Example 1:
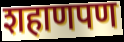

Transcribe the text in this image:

शहाणपण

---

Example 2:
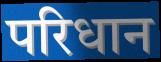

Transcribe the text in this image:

परिधान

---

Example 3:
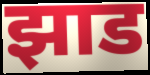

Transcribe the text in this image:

झाड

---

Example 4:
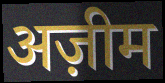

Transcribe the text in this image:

अज़ीम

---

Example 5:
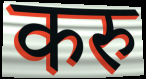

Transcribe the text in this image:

करु